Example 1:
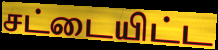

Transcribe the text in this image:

சட்டையிட்ட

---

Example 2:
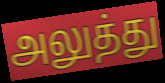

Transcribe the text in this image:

அலுத்து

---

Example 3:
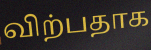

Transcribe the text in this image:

விற்பதாக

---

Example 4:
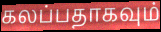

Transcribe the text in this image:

கலப்பதாகவும்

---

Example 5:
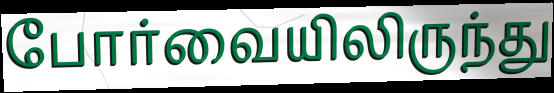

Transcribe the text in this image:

போர்வையிலிருந்து